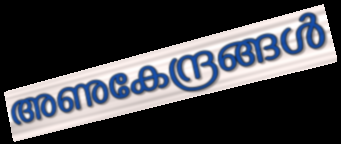
അണുകേന്ദ്രങ്ങൾ